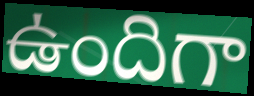
ఉందిగా